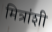
मित्रांशी